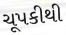
ચૂપકીથી